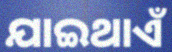
ଯାଇଥାଏଁ